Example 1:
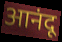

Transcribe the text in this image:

आनंदू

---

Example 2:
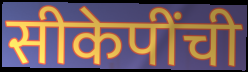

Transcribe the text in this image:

सीकेपींची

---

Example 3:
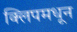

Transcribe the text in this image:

क्लिपमधून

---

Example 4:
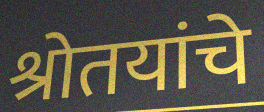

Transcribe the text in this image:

श्रोतयांचे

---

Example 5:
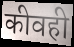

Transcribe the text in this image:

कीवही